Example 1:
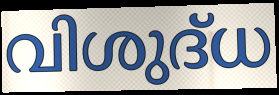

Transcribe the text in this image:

വിശുദ്‌ധ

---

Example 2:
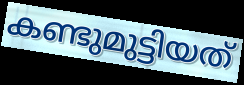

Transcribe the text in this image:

കണ്ടുമുട്ടിയത്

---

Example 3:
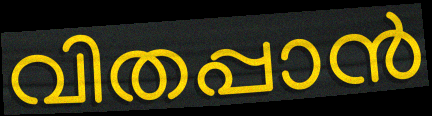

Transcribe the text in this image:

വിതപ്പാൻ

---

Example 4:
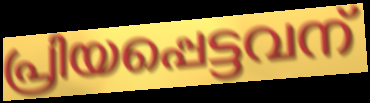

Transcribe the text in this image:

പ്രിയപ്പെട്ടവന്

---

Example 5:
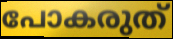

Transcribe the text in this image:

പോകരുത്